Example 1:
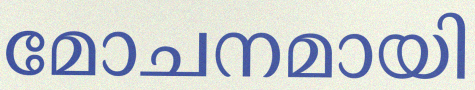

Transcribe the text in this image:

മോചനമായി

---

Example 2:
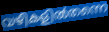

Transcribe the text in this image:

വഴികളിൽതന്നെ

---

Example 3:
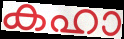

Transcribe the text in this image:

കഹാ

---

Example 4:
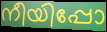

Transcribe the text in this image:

നീയിപ്പോ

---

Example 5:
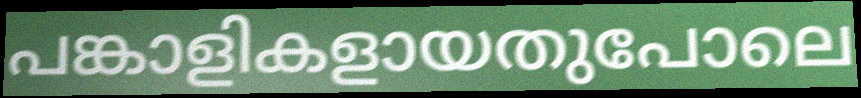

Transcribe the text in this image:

പങ്കാളികളായതുപോലെ